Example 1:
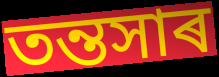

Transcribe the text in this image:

তন্তসাৰ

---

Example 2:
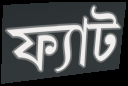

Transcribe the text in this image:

ফ্যাট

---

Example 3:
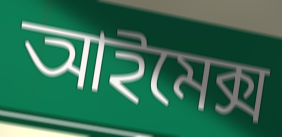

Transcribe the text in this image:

আইমেক্স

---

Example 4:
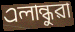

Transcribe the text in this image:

এলান্ধুৱা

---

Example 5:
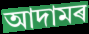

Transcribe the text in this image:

আদামৰ